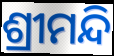
ଶ୍ରୀମନ୍ଦି